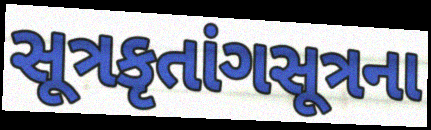
સૂત્રકૃતાંગસૂત્રના